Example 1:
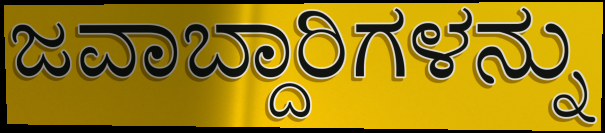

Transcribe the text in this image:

ಜವಾಬ್ದಾರಿಗಳನ್ನು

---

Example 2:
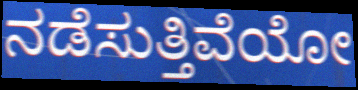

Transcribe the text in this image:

ನಡೆಸುತ್ತಿವೆಯೋ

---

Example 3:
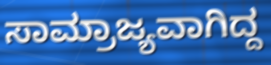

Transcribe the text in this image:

ಸಾಮ್ರಾಜ್ಯವಾಗಿದ್ದ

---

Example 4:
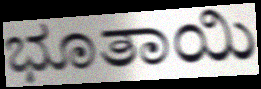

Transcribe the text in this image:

ಭೂತಾಯಿ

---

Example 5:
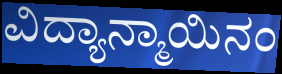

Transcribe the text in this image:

ವಿದ್ಯಾನ್ಮಾಯಿನಂ